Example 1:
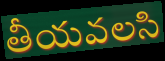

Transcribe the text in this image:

తీయవలసి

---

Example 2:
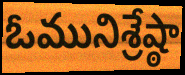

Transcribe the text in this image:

ఓమునిశ్రేష్ఠా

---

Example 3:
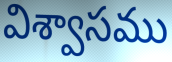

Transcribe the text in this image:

విశ్వాసము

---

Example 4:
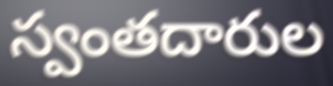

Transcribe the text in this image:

స్వంతదారుల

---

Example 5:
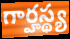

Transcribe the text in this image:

గార్హస్థ్య